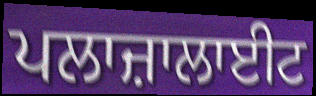
ਪਲਾਜ਼ਾਲਾਈਟ